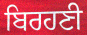
ਬਿਰਹਣੀ